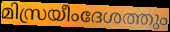
മിസ്രയീംദേശത്തും